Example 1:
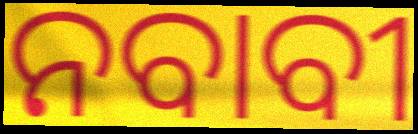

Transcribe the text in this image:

ନବାବୀ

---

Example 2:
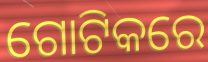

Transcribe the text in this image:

ଗୋଟିକରେ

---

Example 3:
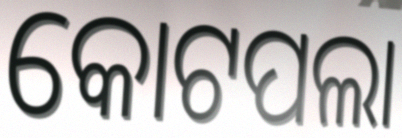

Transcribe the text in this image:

କୋଟପଲା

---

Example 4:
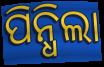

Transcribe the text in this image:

ପିନ୍ଧିଲା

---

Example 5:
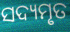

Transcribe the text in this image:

ସଦ୍ୟମୃତ